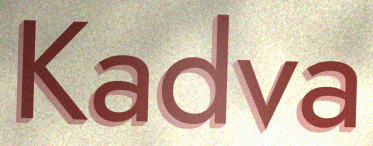
Kadva